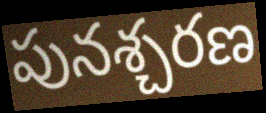
పునశ్చరణ